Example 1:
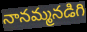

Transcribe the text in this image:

నానమ్మనడిగి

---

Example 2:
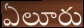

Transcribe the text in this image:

ఏలూరు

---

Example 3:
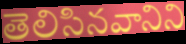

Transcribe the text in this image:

తెలిసినవానిని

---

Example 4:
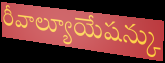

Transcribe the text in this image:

రీవాల్యూయేషన్కు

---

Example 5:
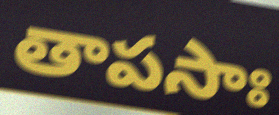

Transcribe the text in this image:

తాపసాః